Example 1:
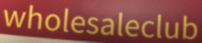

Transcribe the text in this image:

wholesaleclub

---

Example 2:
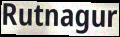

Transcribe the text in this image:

Rutnagur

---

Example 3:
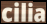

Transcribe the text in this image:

cilia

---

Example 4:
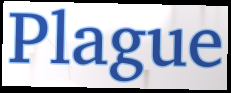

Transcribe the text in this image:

Plague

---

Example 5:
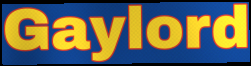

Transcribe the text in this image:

Gaylord